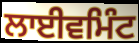
ਲਾਈਵਮਿੰਟ